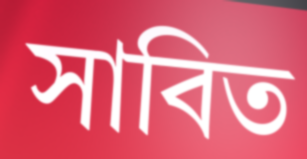
সাবিত